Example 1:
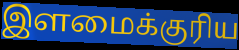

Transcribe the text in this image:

இளமைக்குரிய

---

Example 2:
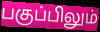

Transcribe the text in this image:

பகுப்பிலும்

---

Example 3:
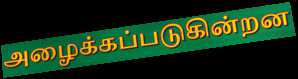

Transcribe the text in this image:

அழைக்கப்படுகின்றன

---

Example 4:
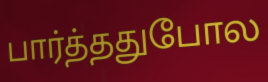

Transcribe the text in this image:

பார்த்ததுபோல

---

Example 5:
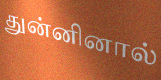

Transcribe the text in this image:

துன்னினால்